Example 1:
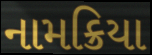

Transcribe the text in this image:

નામક્રિયા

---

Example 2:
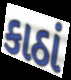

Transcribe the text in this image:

કાઠાં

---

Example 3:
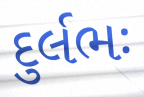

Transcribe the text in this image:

દુર્લભઃ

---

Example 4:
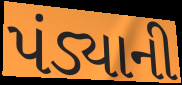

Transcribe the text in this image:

પંડ્યાની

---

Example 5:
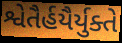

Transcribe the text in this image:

શ્વેતૈર્હયૈર્યુક્તે